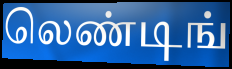
லெண்டிங்